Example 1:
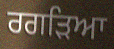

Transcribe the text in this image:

ਰਗੜਿਆ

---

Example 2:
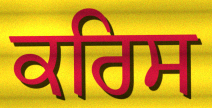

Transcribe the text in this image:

ਕਰਿਸ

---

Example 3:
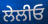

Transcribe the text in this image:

ਲੇਲੀਓ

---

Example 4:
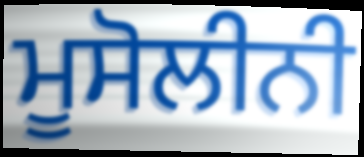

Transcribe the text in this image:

ਮੂਸੋਲੀਨੀ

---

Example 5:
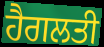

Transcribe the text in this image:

ਹੈਗਲਤੀ